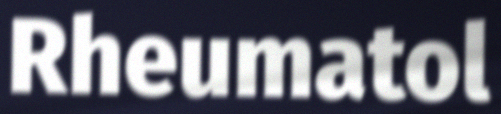
Rheumatol